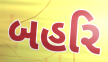
બહરિ